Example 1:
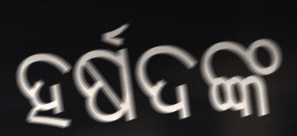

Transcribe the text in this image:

ହର୍ଷଦଙ୍କ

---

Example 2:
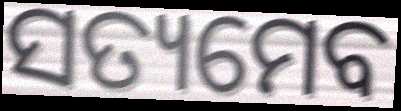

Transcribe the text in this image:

ସତ୍ୟମେବ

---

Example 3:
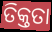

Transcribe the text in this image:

ତିକ୍ତତା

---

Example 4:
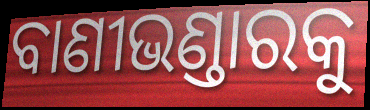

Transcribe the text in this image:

ବାଣୀଭଣ୍ଡାରକୁ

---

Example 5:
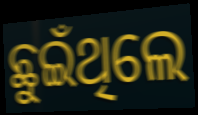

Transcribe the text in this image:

ଛୁଇଁଥିଲେ